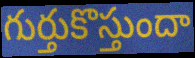
గుర్తుకొస్తుందా